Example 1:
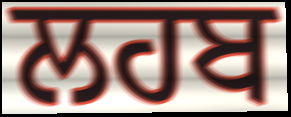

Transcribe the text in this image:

ਲਹਬ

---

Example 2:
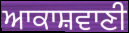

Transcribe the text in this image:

ਆਕਾਸ਼ਵਾਣੀ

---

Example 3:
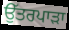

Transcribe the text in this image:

ਉੱਤਰਪਾੜਾ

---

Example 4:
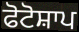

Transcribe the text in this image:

ਫੋਟੋਸ਼ਾਪ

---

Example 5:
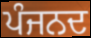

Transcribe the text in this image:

ਪੰਜਨਦ